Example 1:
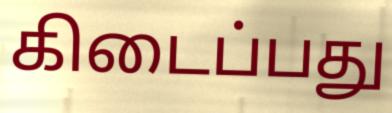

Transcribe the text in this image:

கிடைப்பது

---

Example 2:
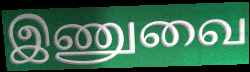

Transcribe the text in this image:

இணுவை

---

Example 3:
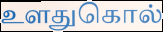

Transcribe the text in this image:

உளதுகொல்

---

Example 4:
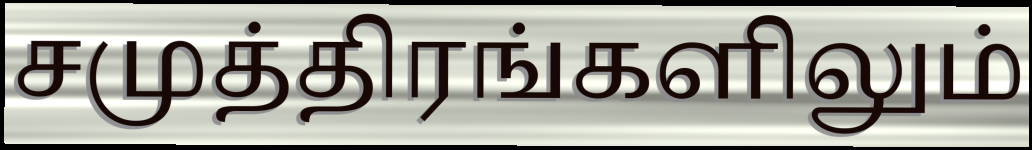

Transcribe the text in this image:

சமுத்திரங்களிலும்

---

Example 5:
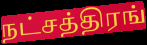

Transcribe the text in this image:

நட்சத்திரங்